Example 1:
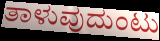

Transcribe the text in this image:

ತಾಳುವುದುಂಟು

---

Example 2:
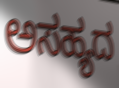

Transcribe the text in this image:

ಅಸಹ್ಯದ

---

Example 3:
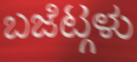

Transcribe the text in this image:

ಬಜೆಟ್ಗಳು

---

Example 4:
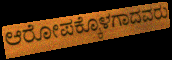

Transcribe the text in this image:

ಆರೋಪಕ್ಕೊಳಗಾದವರು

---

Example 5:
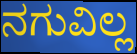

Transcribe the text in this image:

ನಗುವಿಲ್ಲ